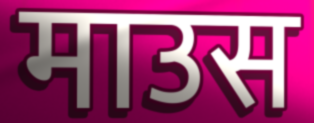
माउस